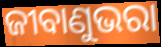
ଜୀବାଣୁଭରା